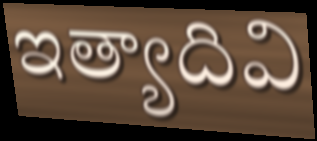
ఇత్యాదివి